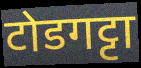
टोडगट्टा